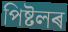
পিষ্টলৰ